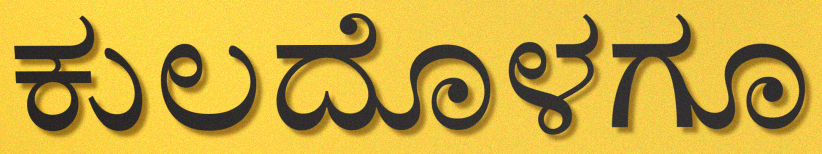
ಕುಲದೊಳಗೂ